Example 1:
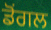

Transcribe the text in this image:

ਡੋਂਗਲ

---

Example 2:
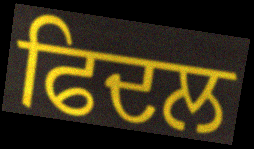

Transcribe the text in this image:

ਫਿਦਲ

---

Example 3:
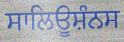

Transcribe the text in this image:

ਸਾਲਿਊਸ਼ੰਨਸ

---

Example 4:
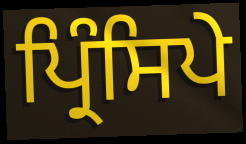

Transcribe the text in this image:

ਪ੍ਰਿੰਸਿਪੇ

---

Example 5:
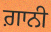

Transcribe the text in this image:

ਗ਼ਾਨੀ